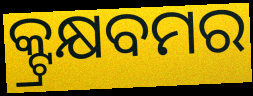
କ୍ଟ୍ରକ୍ଷବମର